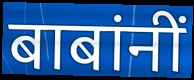
बाबांनीं